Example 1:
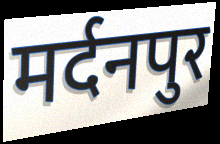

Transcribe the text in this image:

मर्दनपुर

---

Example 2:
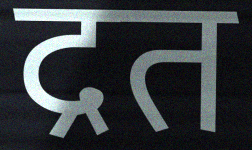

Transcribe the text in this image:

द्रत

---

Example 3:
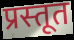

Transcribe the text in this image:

प्रस्तूत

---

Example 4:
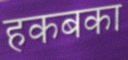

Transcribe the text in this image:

हकबका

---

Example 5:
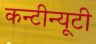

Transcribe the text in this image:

कन्टीन्यूटी